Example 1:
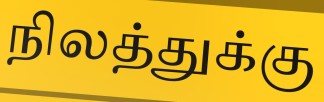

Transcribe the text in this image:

நிலத்துக்கு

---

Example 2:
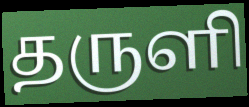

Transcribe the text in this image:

தருளி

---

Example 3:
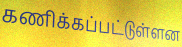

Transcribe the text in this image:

கணிக்கப்பட்டுள்ளன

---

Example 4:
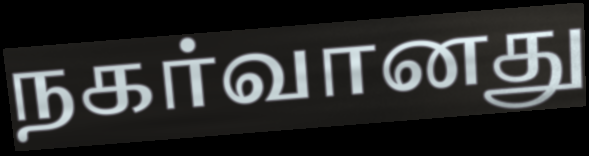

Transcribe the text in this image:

நகர்வானது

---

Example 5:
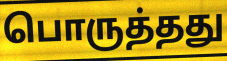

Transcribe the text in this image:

பொருத்தது